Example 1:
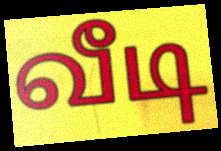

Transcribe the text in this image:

வீடி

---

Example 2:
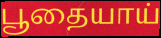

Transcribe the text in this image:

பூதையாய்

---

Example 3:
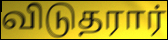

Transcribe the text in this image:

விடுதரார்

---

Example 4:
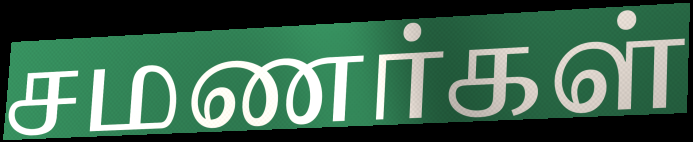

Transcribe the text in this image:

சமணர்கள்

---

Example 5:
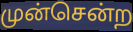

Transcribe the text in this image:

முன்சென்ற